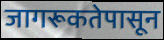
जागरूकतेपासून